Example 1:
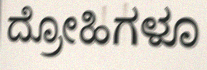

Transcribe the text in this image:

ದ್ರೋಹಿಗಳೂ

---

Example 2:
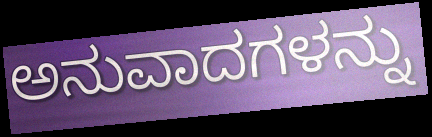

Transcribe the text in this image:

ಅನುವಾದಗಳನ್ನು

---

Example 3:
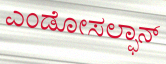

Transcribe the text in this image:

ಎಂಡೋಸಲ್ಫಾನ್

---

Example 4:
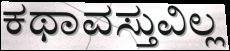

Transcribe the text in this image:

ಕಥಾವಸ್ತುವಿಲ್ಲ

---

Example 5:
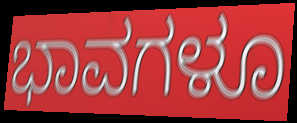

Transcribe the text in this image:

ಭಾವಗಳೂ